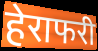
हेराफरी